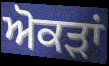
ਅੋਕੜਾਂ